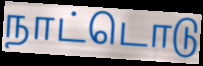
நாட்டொடு